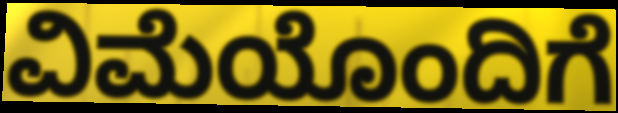
ವಿಮೆಯೊಂದಿಗೆ